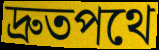
দ্রুতপথে